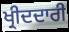
ਖ੍ਰੀਦਦਾਰੀ